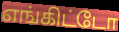
எங்கிட்டோ